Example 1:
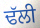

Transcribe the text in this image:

ਢੱਲੀ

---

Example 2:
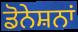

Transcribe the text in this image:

ਡੋਨੇਸ਼ਨਾਂ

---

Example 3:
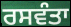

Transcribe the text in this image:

ਰਸਵੰਤਾ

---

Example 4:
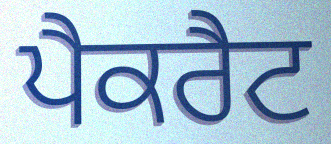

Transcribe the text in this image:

ਪੈਕਰੈਟ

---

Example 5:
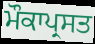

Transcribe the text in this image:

ਮੌਕਾਪ੍ਰਸਤ